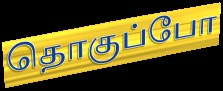
தொகுப்போ